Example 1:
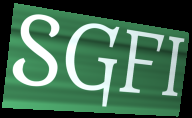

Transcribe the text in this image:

SGFI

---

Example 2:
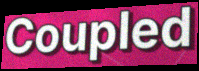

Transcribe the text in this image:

Coupled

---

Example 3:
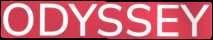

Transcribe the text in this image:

ODYSSEY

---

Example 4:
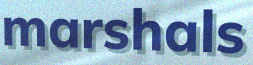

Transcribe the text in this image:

marshals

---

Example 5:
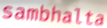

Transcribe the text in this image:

sambhalta